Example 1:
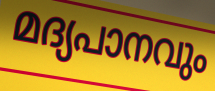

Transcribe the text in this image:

മദ്യപാനവും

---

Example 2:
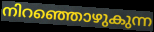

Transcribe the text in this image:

നിറഞ്ഞൊഴുകുന്ന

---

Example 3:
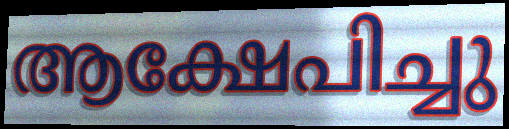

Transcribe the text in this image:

ആക്ഷേപിച്ചു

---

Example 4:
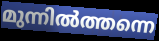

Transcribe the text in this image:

മുന്നിൽത്തന്നെ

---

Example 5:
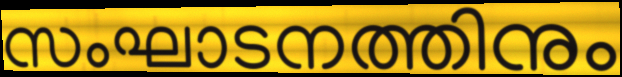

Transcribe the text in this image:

സംഘാടനത്തിനും